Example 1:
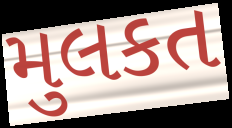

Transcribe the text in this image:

મુલકત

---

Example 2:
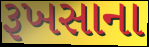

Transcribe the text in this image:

રૂખસાના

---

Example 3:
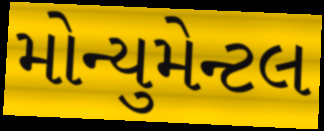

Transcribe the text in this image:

મોન્યુમેન્ટલ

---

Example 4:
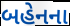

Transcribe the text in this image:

બહેનના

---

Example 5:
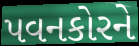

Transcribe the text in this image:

પવનકોરને